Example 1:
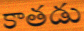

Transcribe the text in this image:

కాతడు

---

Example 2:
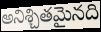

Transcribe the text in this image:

అనిశ్చితమైనది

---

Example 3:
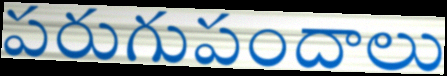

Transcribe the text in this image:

పరుగుపందాలు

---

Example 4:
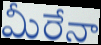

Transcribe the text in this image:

మీరేనా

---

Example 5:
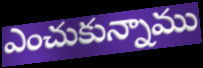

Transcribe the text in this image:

ఎంచుకున్నాము